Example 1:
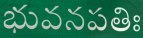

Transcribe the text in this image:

భువనపతిః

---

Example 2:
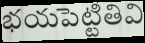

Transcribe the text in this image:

భయపెట్టితివి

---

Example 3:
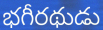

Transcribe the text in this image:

భగీరథుడు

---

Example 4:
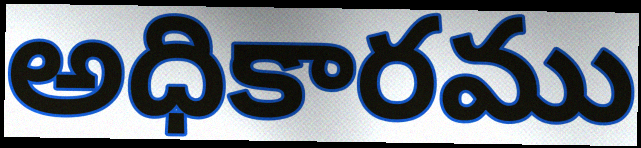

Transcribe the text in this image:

అధికారము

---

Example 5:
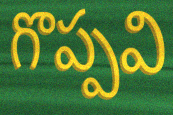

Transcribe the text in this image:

గొప్పవి